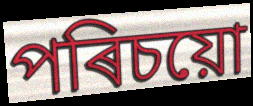
পৰিচয়ো